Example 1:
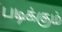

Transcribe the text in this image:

படிக்கும்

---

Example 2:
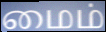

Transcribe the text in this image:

மைம்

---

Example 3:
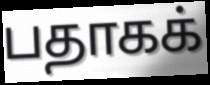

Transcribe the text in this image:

பதாகக்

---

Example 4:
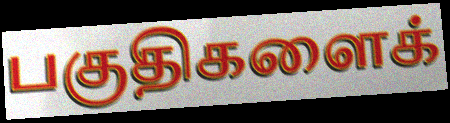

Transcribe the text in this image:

பகுதிகளைக்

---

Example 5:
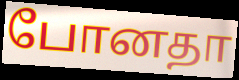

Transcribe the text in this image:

போனதா